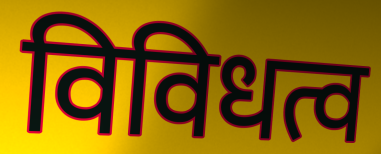
विविधत्व